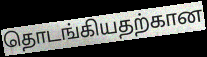
தொடங்கியதற்கான